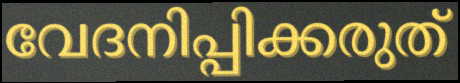
വേദനിപ്പിക്കരുത്